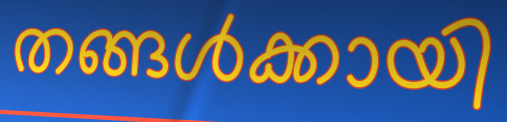
തങ്ങൾക്കായി